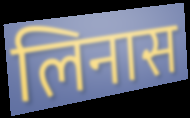
लिनास